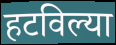
हटविल्या